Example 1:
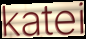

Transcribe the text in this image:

katei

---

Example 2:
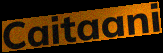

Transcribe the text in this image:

Caitaani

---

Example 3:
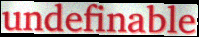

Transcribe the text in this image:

undefinable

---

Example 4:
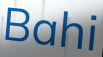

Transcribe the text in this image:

Bahi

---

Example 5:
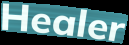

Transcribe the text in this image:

Healer